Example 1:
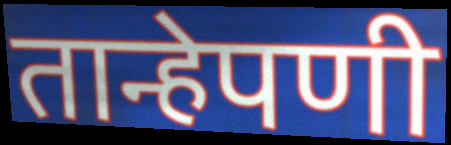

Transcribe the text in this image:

तान्हेपणी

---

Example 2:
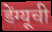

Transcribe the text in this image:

डेंग्यूची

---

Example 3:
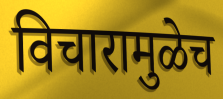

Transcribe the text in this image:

विचारामुळेच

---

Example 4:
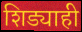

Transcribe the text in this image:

शिड्याही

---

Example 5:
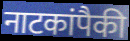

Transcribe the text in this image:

नाटकांपैकी